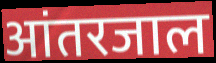
आंतरजाल